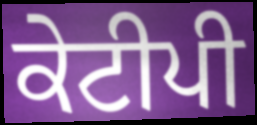
ਕੇਟੀਪੀ